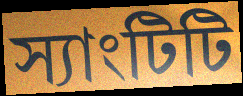
স্যাংটিটি